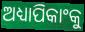
ଅଧ୍ୟାପିକାଂକୁ